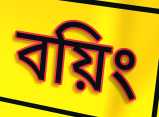
বয়িং